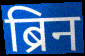
ब्रिन